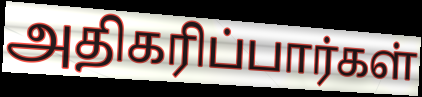
அதிகரிப்பார்கள்